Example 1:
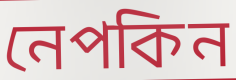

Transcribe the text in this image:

নেপকিন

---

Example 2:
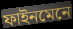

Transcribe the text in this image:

ফাইনমেনে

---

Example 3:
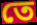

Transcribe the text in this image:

তে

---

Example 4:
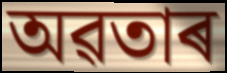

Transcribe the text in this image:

অৱতাৰ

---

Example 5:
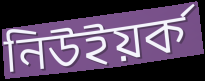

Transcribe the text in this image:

নিউইয়ৰ্ক